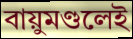
বায়ুমণ্ডলেই